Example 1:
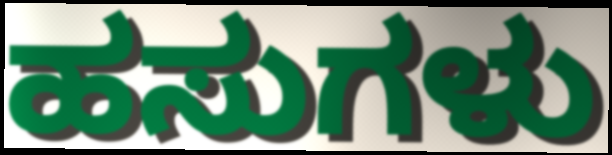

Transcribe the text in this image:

ಹಸುಗಳು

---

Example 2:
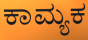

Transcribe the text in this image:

ಕಾಮ್ಯಕ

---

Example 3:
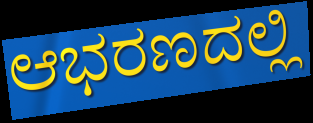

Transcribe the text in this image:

ಆಭರಣದಲ್ಲಿ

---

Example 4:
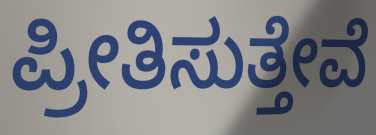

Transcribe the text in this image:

ಪ್ರೀತಿಸುತ್ತೇವೆ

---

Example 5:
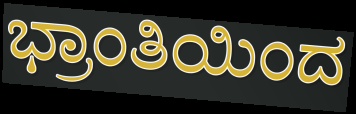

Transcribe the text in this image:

ಭ್ರಾಂತಿಯಿಂದ